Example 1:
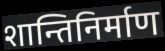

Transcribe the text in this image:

शान्तिनिर्माण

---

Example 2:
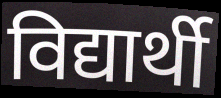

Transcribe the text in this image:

विद्यार्थी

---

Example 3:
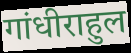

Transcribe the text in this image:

गांधीराहुल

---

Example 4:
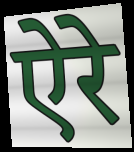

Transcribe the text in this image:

ऐरे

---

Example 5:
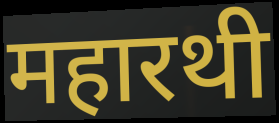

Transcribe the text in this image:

महारथी